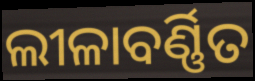
ଲୀଳାବର୍ଣ୍ଣିତ